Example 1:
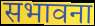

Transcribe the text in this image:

सभावना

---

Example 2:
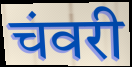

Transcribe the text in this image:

चंवरी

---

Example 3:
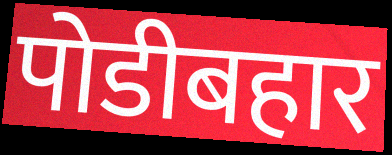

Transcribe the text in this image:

पोडीबहार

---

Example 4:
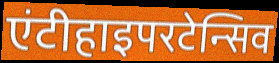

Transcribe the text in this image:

एंटीहाइपरटेन्सिव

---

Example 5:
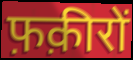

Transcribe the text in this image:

फ़क़ीरों